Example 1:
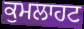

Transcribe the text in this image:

ਕੁਮਲਾਹਟ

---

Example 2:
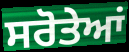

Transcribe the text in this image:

ਸਰੋਤੇਆਂ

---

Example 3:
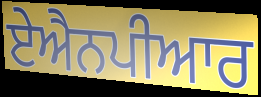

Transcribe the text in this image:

ਏਐਨਪੀਆਰ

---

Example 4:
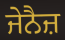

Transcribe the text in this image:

ਜੇਨੈਜ਼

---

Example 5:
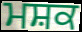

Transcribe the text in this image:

ਮਸ਼ਕ